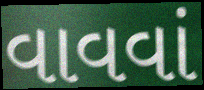
વાવવાં